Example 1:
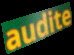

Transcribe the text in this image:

audite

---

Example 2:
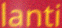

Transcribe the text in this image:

lanti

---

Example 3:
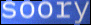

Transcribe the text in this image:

soory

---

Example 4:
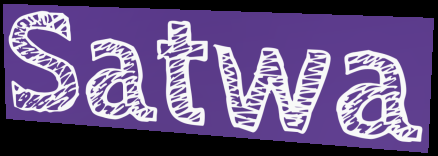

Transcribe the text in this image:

Satwa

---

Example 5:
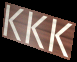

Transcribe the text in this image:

KKK